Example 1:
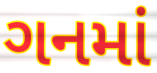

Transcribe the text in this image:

ગનમાં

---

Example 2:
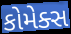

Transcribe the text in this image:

કોમેક્સ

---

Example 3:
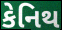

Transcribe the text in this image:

કેનિથ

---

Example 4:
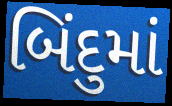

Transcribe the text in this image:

બિંદુમાં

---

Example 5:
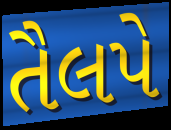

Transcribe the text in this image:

તૈલપે